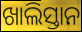
ଖାଲିସ୍ତାନ